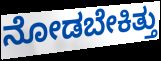
ನೋಡಬೇಕಿತ್ತು